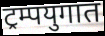
ट्रम्पयुगात